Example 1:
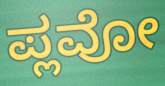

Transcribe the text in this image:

ಪ್ಲವೋ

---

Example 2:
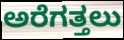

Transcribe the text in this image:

ಅರೆಗತ್ತಲು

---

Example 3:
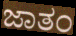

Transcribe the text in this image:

ಜಾತಂ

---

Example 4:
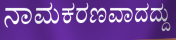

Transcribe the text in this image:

ನಾಮಕರಣವಾದದ್ದು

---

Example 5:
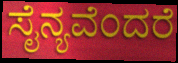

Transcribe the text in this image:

ಸೈನ್ಯವೆಂದರೆ